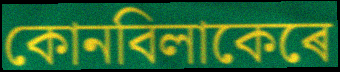
কোনবিলাকেৰে